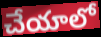
చేయాలో